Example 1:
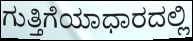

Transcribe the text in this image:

ಗುತ್ತಿಗೆಯಾಧಾರದಲ್ಲಿ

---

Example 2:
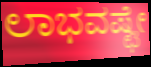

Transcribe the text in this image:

ಲಾಭವಷ್ಟೇ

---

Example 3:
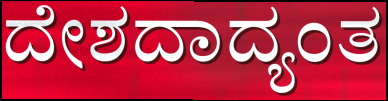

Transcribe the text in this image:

ದೇಶದಾದ್ಯಂತ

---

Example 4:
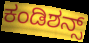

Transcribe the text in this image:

ಕಂಡಿಶನ್ಸ್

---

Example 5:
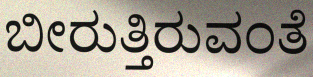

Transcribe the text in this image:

ಬೀರುತ್ತಿರುವಂತೆ